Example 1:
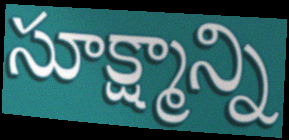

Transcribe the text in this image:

సూక్ష్మాన్ని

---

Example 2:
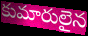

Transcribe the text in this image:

కుమారులైన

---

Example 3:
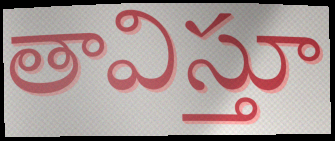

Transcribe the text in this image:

తావిస్తూ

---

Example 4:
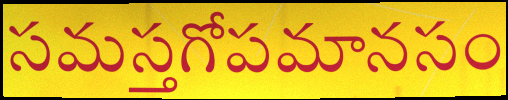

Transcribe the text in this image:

సమస్తగోపమానసం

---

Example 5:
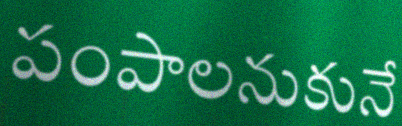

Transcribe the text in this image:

పంపాలనుకునే